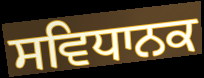
ਸਵਿਧਾਨਕ